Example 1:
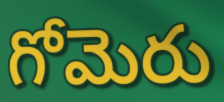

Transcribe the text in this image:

గోమెరు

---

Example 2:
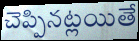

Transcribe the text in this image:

చెప్పినట్లయితే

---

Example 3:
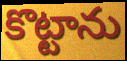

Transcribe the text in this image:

కొట్టాను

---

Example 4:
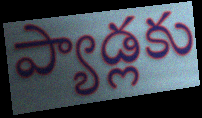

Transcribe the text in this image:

ప్యాడ్లకు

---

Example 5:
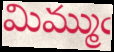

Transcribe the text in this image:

మిమ్ముఁ